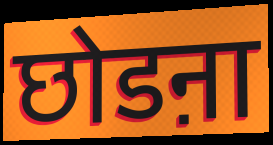
छोडऩा